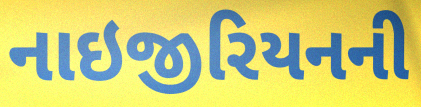
નાઇજીરિયનની